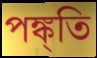
পঙ্ক্তি